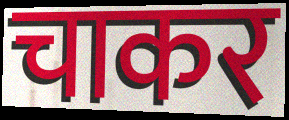
चाकर